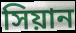
সিয়ান